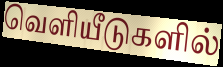
வெளியீடுகளில்